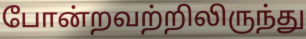
போன்றவற்றிலிருந்து